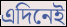
এদিনেই